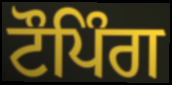
ਟੌਪਿੰਗ